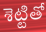
శెట్టితో